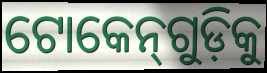
ଟୋକେନ୍‌ଗୁଡ଼ିକୁ